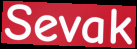
Sevak